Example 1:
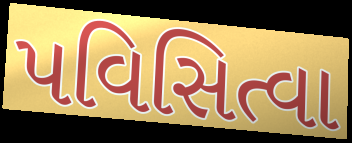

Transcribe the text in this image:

પવિસિત્વા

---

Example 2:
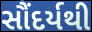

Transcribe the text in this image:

સૌંદર્યથી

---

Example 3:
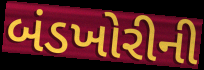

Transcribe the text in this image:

બંડખોરીની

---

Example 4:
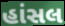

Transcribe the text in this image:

હાંસલ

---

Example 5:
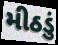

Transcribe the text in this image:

મીઠડું